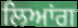
ਲਿਆਂਗ